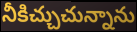
నీకిచ్చుచున్నాను